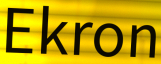
Ekron